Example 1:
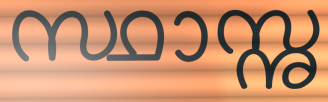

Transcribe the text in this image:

സ്ഥാസ്നു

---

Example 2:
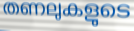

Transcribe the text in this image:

തണലുകളുടെ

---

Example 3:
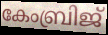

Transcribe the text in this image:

കേംബ്രിജ്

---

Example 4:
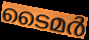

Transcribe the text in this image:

ടൈമർ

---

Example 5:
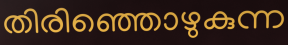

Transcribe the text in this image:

തിരിഞ്ഞൊഴുകുന്ന